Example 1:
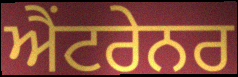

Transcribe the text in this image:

ਐਂਟਰੇਨਰ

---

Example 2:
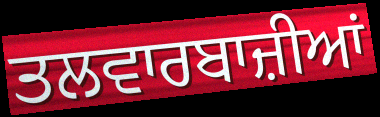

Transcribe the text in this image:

ਤਲਵਾਰਬਾਜ਼ੀਆਂ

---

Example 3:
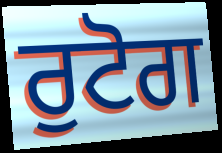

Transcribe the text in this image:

ਰੁਟੋਗ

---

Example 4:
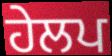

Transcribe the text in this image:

ਹੇਲਪ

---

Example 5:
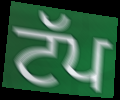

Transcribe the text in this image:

ਟੱਪ